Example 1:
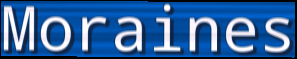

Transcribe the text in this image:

Moraines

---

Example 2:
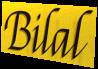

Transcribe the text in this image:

Bilal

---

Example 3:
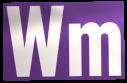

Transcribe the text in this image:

Wm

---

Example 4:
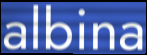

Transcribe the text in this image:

albina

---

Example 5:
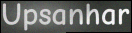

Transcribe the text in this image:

Upsanhar